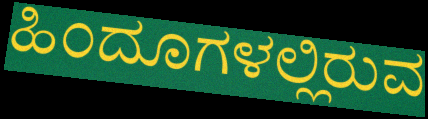
ಹಿಂದೂಗಳಲ್ಲಿರುವ